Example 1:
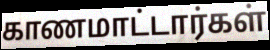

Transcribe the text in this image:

காணமாட்டார்கள்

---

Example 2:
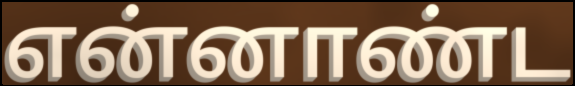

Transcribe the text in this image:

என்னாண்ட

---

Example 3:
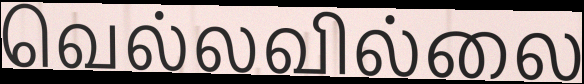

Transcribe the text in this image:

வெல்லவில்லை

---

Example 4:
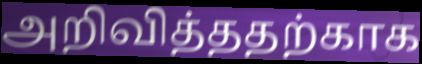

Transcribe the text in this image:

அறிவித்ததற்காக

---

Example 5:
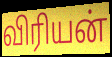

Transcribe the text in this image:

விரியன்